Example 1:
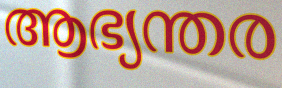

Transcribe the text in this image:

ആഭ്യന്തര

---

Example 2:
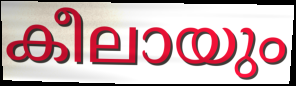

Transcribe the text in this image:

കീലായും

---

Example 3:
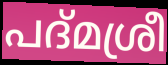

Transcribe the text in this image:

പദ്മശ്രീ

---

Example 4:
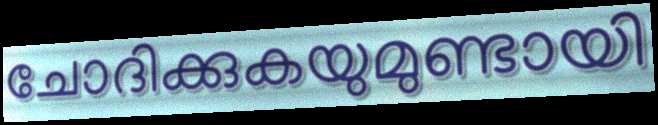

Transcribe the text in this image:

ചോദിക്കുകയുമുണ്ടായി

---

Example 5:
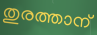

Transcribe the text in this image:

തുരത്താന്